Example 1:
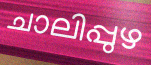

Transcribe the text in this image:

ചാലിപ്പുഴ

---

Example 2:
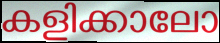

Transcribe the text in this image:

കളിക്കാലോ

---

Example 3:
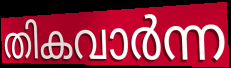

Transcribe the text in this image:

തികവാർന്ന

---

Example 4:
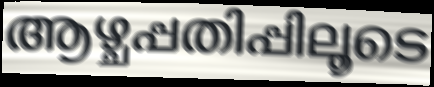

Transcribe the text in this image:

ആഴ്ചപ്പതിപ്പിലൂടെ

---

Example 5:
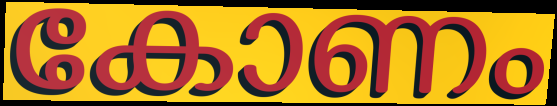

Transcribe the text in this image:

കോണം